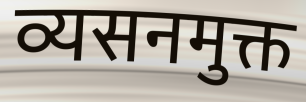
व्यसनमुक्त